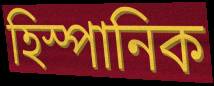
হিস্পানিক